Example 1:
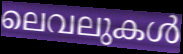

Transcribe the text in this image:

ലെവലുകൾ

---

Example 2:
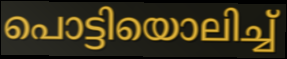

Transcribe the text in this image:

പൊട്ടിയൊലിച്ച്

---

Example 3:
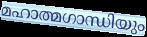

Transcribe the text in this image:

മഹാത്മഗാന്ധിയും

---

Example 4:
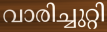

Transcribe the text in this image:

വാരിച്ചുറ്റി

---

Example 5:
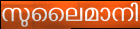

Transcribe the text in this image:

സുലൈമാനി